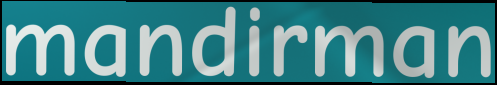
mandirman